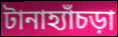
টানাহ্যাঁচড়া